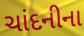
ચાંદનીના